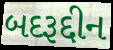
બદરૂદ્દીન